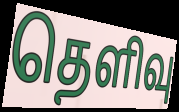
தெளிவு